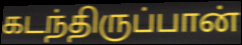
கடந்திருப்பான்